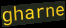
gharne